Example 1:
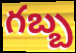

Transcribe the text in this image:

గబ్బ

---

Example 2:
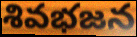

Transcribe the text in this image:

శివభజన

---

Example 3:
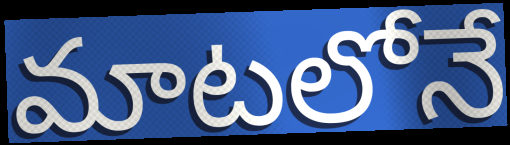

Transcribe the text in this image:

మాటలోనే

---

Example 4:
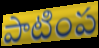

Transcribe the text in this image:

పాటింప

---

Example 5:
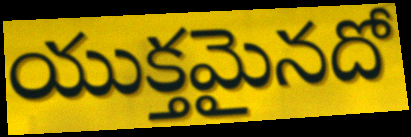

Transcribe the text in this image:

యుక్తమైనదో